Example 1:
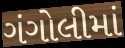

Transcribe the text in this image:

ગંગોલીમાં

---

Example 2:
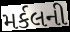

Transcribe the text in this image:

મર્કલની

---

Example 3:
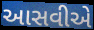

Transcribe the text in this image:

આસવીએ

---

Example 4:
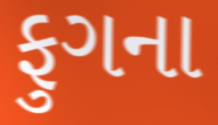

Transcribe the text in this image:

ફુગના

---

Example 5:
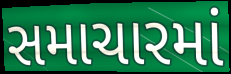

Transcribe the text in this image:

સમાચારમાં